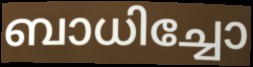
ബാധിച്ചോ